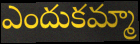
ఎందుకమ్మా